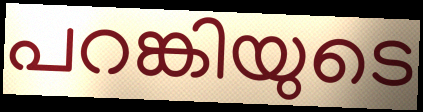
പറങ്കിയുടെ